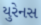
યુરેનસ